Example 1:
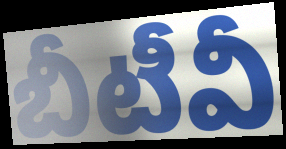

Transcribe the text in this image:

బీటీవీ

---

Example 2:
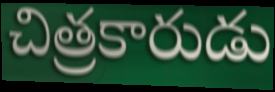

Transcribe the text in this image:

చిత్రకారుడు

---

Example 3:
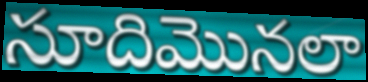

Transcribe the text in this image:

సూదిమొనలా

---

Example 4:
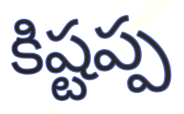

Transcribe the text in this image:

కిష్టప్ప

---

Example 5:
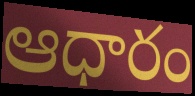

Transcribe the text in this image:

ఆధారం